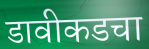
डावीकडचा